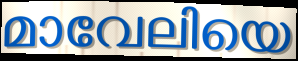
മാവേലിയെ